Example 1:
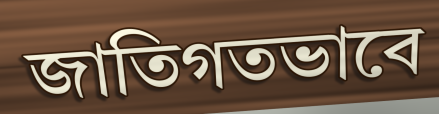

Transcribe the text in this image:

জাতিগতভাবে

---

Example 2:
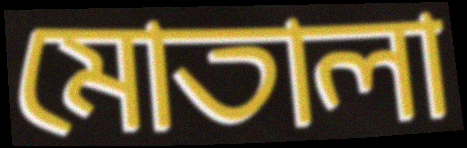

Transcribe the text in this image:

মোতালা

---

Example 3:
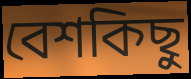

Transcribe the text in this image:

বেশকিছু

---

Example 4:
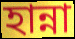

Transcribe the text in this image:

হান্না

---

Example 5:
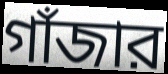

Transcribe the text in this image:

গাঁজার